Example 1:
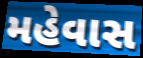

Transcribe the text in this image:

મહેવાસ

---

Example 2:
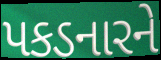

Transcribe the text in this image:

પકડનારને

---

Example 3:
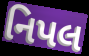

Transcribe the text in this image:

નિપલ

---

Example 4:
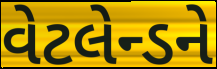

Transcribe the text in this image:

વેટલેન્ડને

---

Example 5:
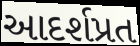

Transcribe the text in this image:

આદર્શપ્રત